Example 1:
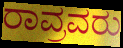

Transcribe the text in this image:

ರಾವ್ರವರು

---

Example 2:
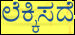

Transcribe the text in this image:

ಲೆಕ್ಕಿಸದೆ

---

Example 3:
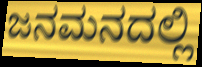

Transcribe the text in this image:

ಜನಮನದಲ್ಲಿ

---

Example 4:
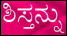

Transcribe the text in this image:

ಶಿಸ್ತನ್ನು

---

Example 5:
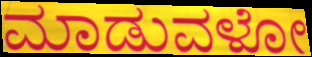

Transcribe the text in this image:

ಮಾಡುವಳೋ